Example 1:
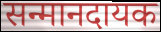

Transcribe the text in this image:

सन्मानदायक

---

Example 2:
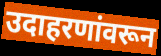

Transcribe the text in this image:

उदाहरणांवरून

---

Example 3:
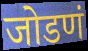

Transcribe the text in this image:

जोडणं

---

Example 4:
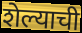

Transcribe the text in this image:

शेल्याची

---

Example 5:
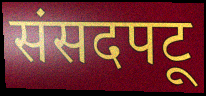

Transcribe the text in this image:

संसदपटू